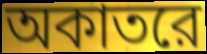
অকাতরে